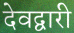
देवद्वारी